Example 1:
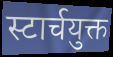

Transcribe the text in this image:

स्टार्चयुक्त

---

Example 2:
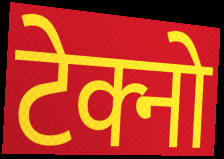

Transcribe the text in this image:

टेक्‍नो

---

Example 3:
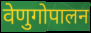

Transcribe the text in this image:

वेणुगोपालन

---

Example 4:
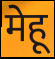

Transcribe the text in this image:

मेहू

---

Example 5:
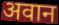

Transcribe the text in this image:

अवान